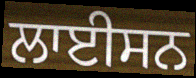
ਲਾਈਸਨ